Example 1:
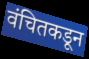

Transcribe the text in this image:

वंचितकडून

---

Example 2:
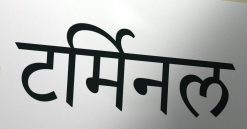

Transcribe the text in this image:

टर्मिनल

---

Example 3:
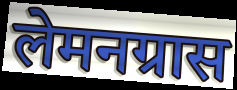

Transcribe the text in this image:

लेमनग्रास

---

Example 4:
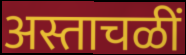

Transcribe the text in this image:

अस्ताचळीं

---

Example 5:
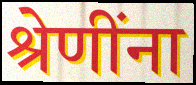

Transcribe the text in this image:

श्रेणींना